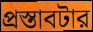
প্রস্তাবটার